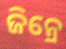
ଜିନ୍ରେ